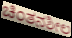
ಚಿಂತನಶೀಲ